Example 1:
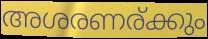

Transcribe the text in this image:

അശരണര്ക്കും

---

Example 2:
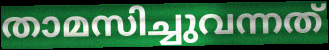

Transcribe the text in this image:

താമസിച്ചുവന്നത്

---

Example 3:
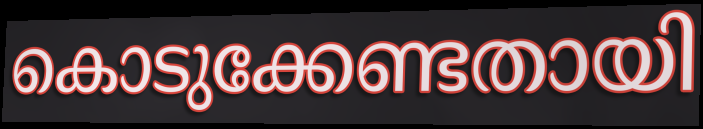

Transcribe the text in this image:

കൊടുക്കേണ്ടതായി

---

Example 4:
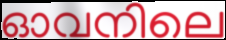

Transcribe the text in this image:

ഓവനിലെ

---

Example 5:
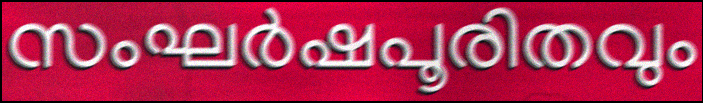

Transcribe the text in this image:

സംഘർഷപൂരിതവും